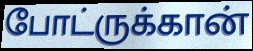
போட்ருக்கான்